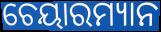
ଚେୟାରମ୍ୟାନ